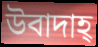
উবাদাহ্